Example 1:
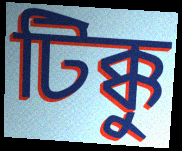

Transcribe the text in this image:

টিক্কু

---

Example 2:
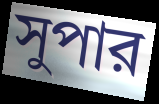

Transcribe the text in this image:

সুপার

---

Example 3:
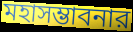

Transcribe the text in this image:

মহাসম্ভাবনার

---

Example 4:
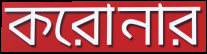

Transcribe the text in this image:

করোনার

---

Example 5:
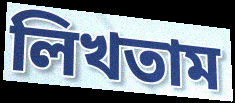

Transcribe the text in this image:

লিখতাম